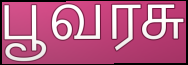
பூவரசு